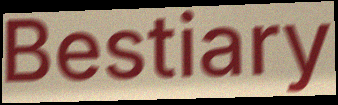
Bestiary